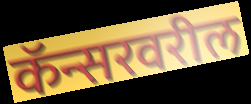
कॅन्सरवरील